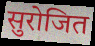
सुरोजित